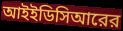
আইইডিসিআরের